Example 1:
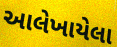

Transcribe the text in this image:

આલેખાયેલા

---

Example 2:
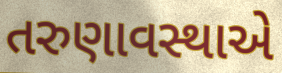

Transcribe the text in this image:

તરુણાવસ્થાએ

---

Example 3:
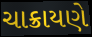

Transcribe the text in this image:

ચાક્રાયણે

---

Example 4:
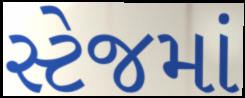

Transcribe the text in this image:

સ્ટેજમાં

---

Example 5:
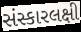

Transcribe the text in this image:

સંસ્કારલક્ષી